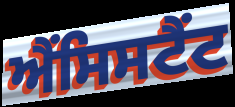
ਐਂਸਿਸਟੈਂਟ